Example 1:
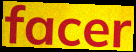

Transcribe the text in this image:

facer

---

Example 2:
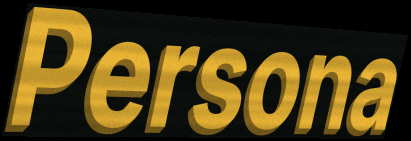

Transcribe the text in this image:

Persona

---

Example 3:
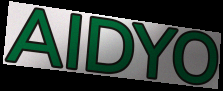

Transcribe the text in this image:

AIDYO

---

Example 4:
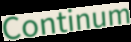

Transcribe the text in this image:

Continum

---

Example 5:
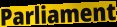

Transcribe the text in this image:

Parliament